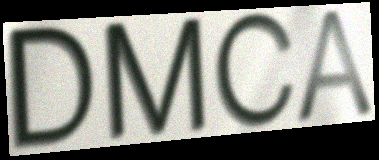
DMCA